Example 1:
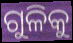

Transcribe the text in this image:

ଗୁଳିକୁ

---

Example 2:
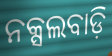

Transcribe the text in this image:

ନକ୍ସଲବାଡ଼ି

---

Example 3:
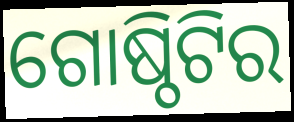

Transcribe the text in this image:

ଗୋଷ୍ଠିଟିର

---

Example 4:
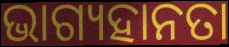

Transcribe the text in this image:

ଭାଗ୍ୟହାନତା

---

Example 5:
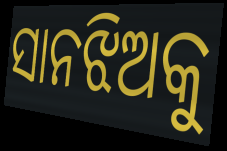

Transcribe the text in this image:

ସାନଝିଅକୁ